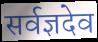
सर्वज्ञदेव